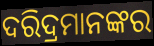
ଦରିଦ୍ରମାନଙ୍କର